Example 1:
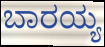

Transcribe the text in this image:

ಬಾರಯ್ಯ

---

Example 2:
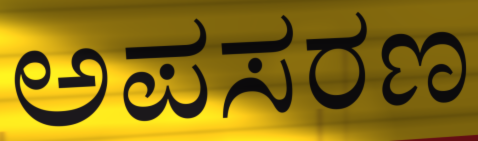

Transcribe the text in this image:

ಅಪಸರಣ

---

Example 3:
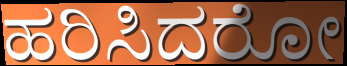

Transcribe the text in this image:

ಹರಿಸಿದರೋ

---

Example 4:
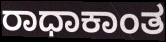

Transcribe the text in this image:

ರಾಧಾಕಾಂತ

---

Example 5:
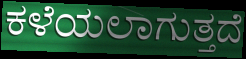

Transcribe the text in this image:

ಕಳೆಯಲಾಗುತ್ತದೆ